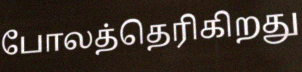
போலத்தெரிகிறது